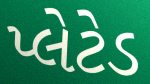
પ્લેટેડ